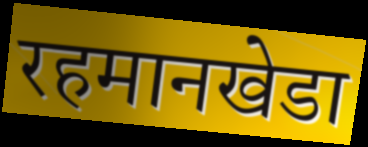
रहमानखेडा